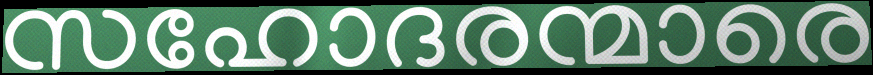
സഹോദരന്മാരെ